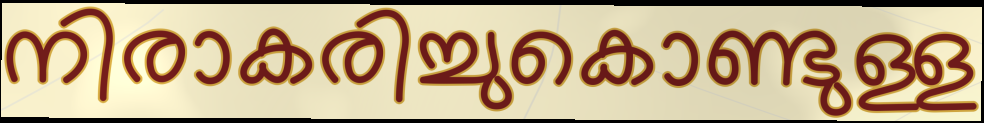
നിരാകരിച്ചുകൊണ്ടുള്ള